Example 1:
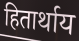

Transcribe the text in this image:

हितार्थाय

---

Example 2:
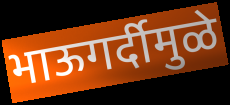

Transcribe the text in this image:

भाऊगर्दीमुळे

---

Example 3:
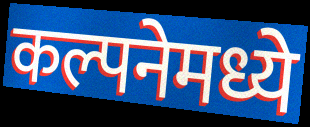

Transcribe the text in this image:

कल्पनेमध्ये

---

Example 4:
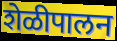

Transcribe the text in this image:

शेळीपालन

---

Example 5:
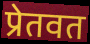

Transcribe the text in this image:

प्रेतवत